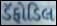
ડૅફોડિલ